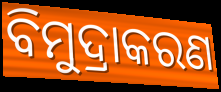
ବିମୁଦ୍ରାକରଣ